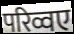
परिव्वए